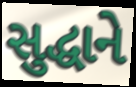
સુદ્ધાને